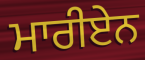
ਮਾਰੀਏਨ